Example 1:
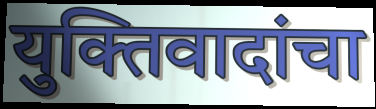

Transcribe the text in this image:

युक्तिवादांचा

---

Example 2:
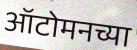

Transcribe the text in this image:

ऑटोमनच्या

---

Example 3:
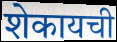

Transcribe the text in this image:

शेकायची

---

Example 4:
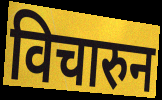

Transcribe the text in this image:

विचारुन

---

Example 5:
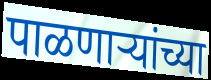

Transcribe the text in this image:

पाळणाऱ्यांच्या